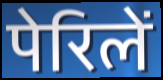
पेरिलें